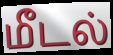
மீடல்